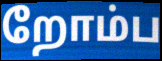
றோம்ப